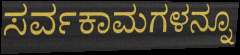
ಸರ್ವಕಾಮಗಳನ್ನೂ